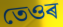
তেওৰ